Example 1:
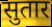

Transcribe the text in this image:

सुतार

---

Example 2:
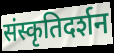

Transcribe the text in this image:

संस्कृतिदर्शन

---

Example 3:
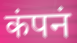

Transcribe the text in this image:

कंपनं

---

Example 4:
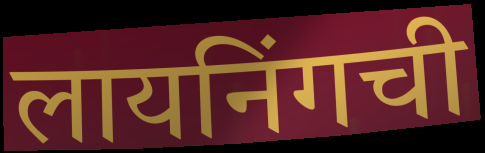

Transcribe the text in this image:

लायनिंगची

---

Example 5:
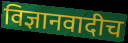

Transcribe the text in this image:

विज्ञानवादीच